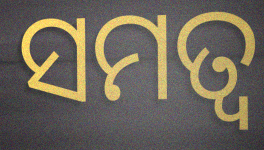
ସମତ୍ଵ